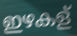
ഇഴകള്